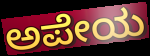
ಅಪೇಯ